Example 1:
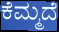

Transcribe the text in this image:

ಕೆಮ್ಮದೆ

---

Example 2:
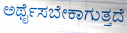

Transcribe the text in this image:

ಅರ್ಥೈಸಬೇಕಾಗುತ್ತದೆ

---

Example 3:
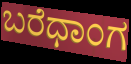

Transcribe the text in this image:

ಬರೆಧಾಂಗ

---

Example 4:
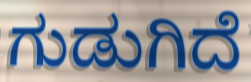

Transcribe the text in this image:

ಗುಡುಗಿದೆ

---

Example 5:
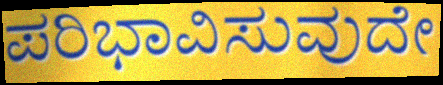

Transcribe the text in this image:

ಪರಿಭಾವಿಸುವುದೇ